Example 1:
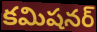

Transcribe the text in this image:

కమిషనర్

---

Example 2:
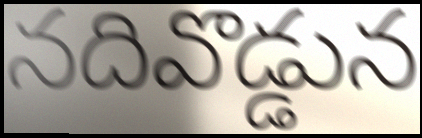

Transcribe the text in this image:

నదివొడ్డున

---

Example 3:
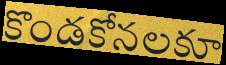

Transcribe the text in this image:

కొండకోనలకూ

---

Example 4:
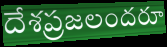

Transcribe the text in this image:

దేశప్రజలందరూ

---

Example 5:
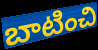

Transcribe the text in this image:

బాటించి